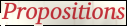
Propositions